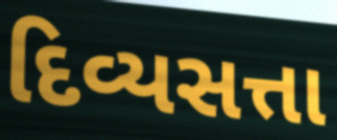
દિવ્યસત્તા